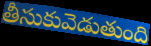
తీసుకువెడుతుంది